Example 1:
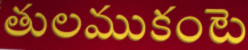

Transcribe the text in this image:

తులముకంటె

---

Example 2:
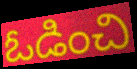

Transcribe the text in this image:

ఓడించి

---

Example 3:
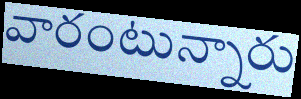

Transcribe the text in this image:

వారంటున్నారు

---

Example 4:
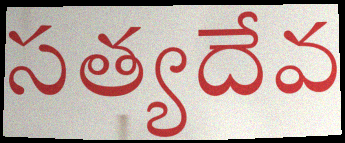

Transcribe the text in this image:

సత్యదేవ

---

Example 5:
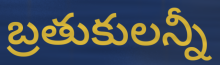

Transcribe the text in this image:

బ్రతుకులన్నీ